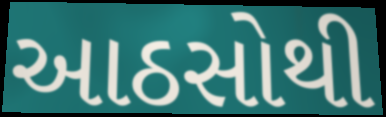
આઠસોથી